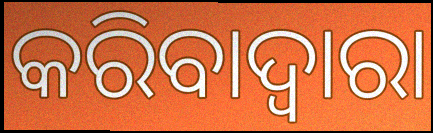
କରିବାଦ୍ବାରା